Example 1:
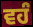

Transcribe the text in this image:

ਵਹੰ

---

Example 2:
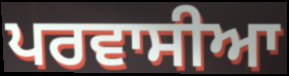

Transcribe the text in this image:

ਪਰਵਾਸੀਆ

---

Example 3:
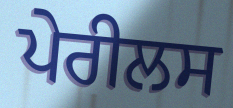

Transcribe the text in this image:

ਪੇਰੀਲਸ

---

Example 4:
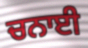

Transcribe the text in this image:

ਚਨਾਈ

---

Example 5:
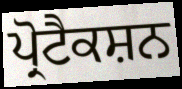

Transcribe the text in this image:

ਪ੍ਰੋਟੈਕਸ਼ਨ